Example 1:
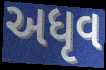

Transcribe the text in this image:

અધૃવ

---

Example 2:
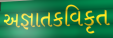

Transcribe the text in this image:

અજ્ઞાતકવિકૃત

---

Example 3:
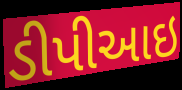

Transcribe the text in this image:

ડીપીઆઇ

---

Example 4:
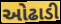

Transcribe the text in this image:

ઓઢાડી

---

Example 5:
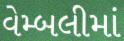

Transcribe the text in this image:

વેમ્બલીમાં